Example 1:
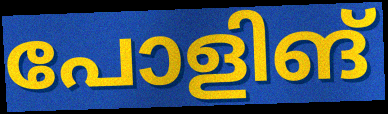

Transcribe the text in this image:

പോളിങ്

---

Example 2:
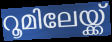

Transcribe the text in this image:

റൂമിലേയ്ക്ക്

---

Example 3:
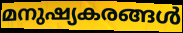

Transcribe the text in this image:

മനുഷ്യകരങ്ങൾ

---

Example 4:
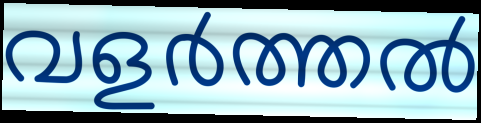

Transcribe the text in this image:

വളർത്തൽ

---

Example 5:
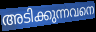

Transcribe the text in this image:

അടിക്കുന്നവനെ